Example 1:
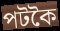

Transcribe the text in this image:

পটকৈ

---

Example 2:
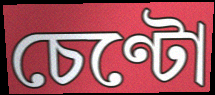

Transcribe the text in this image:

চেণ্টো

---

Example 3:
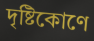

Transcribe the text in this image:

দৃষ্টিকোণে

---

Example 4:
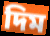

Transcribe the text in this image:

দিম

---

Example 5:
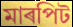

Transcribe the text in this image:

মাৰপিট